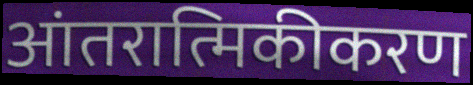
आंतरात्मिकीकरण